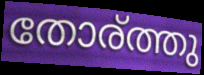
തോര്ത്തു